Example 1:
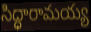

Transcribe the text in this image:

సిద్ధారామయ్య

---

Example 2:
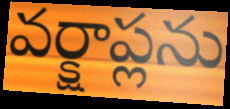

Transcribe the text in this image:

వర్క్షాప్లను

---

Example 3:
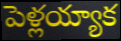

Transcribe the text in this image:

పెళ్లయ్యాక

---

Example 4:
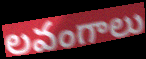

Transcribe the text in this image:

లవంగాలు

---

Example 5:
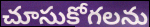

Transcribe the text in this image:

చూసుకోగలను